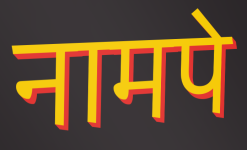
नामपे